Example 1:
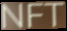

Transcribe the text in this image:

NFT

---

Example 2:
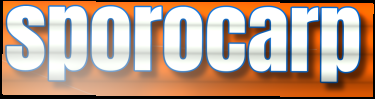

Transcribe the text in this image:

sporocarp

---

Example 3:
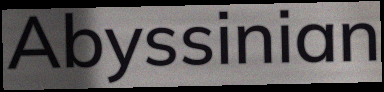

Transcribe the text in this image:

Abyssinian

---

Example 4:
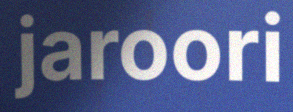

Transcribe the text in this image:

jaroori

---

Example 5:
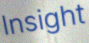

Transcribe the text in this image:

Insight